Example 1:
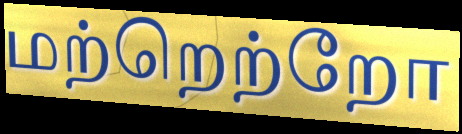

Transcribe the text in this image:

மற்றெற்றோ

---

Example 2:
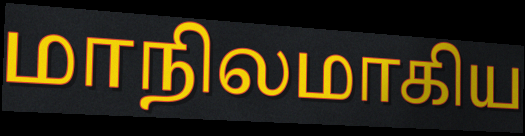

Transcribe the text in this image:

மாநிலமாகிய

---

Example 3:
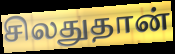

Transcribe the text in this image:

சிலதுதான்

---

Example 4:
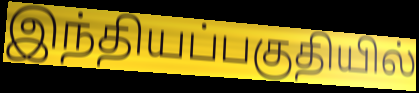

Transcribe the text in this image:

இந்தியப்பகுதியில்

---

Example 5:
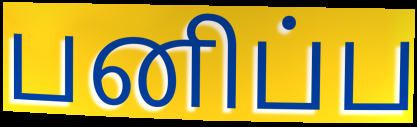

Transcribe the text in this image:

பனிப்ப